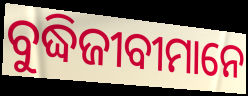
ବୁଦ୍ଧିଜୀବୀମାନେ